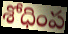
శోధింప